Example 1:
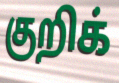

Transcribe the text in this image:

குறிக்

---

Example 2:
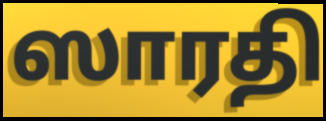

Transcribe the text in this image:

ஸாரதி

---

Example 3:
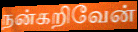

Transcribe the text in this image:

நன்கறிவேன்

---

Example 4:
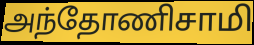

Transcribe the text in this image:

அந்தோணிசாமி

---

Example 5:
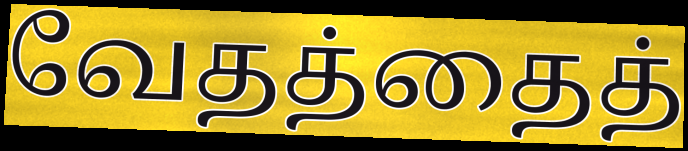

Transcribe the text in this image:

வேதத்தைத்